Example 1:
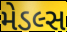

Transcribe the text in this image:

મેડલ્સ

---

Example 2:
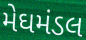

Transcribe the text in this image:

મેઘમંડલ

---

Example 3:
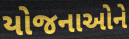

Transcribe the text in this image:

યોજનાઓને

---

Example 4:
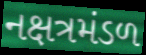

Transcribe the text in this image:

નક્ષત્રમંડળ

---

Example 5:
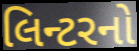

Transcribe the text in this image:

લિન્ટરનો